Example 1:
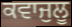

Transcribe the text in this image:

ਕਵਾਜੁਲੂ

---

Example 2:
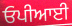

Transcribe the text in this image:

ਓਪੀਆਈ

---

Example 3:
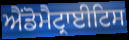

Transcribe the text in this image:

ਐਂਡੋਮੈਟ੍ਰਾਈਟਿਸ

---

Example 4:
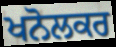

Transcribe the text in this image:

ਖਨੋਲਕਰ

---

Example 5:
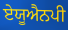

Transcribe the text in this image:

ਏਯੂਐਨਪੀ